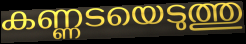
കണ്ണടയെടുത്തു